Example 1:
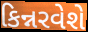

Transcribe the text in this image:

કિન્નરવેશે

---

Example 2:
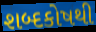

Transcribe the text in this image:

શબ્દકોષથી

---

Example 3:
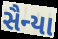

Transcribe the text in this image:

સૈન્યા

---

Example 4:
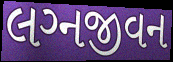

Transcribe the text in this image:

લગ્‍નજીવન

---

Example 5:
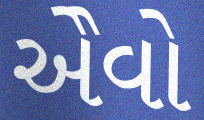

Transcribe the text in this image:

એેવો